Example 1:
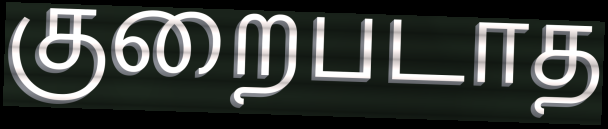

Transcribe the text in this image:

குறைபடாத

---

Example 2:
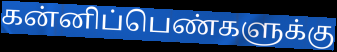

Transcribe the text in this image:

கன்னிப்பெண்களுக்கு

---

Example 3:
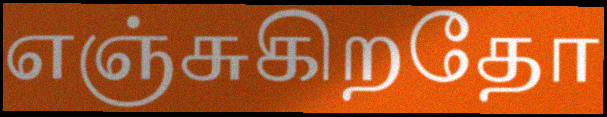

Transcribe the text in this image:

எஞ்சுகிறதோ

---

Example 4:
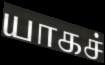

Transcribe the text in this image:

யாகச்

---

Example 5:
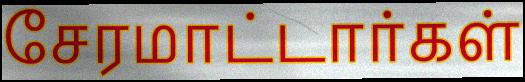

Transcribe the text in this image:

சேரமாட்டார்கள்